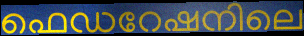
ഫെഡറേഷനിലെ